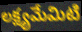
లక్ష్యమేమిటి